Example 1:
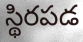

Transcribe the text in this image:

స్థిరపడ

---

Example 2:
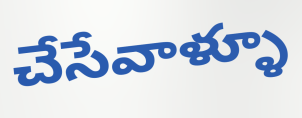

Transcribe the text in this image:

చేసేవాళ్ళూ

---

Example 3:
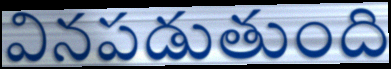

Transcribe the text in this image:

వినపడుతుంది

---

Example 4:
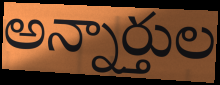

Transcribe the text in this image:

అన్నార్తుల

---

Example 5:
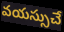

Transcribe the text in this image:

వయస్సుచే